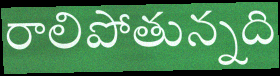
రాలిపోతున్నది